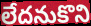
లేదనుకొని